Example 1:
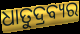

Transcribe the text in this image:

ଧାତୁଦ୍ରବ୍ୟର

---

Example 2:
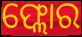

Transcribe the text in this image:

ଫ୍ଲୋର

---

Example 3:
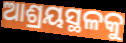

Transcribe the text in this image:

ଆଶ୍ରୟସ୍ଥଳକୁ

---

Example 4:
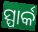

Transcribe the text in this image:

ସ୍ପାର୍କ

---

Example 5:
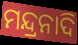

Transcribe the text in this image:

ମନ୍ଦ୍ରନାଦି